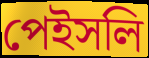
পেইসলি